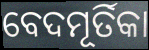
ବେଦମୂର୍ତିକା